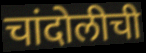
चांदोलीची